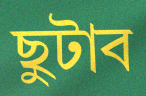
ছুটাব